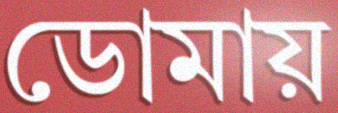
ডোমায়